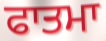
ਫਾਤਮਾ